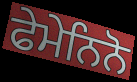
ਫੇਮੇਨਿਨੋ